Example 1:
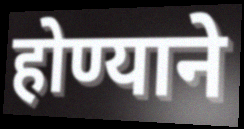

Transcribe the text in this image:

होण्याने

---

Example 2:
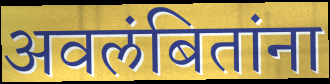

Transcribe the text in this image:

अवलंबितांना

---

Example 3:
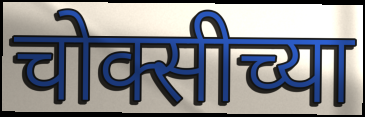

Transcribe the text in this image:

चोक्सीच्या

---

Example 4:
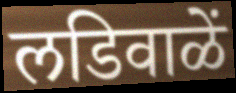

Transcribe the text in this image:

लडिवाळें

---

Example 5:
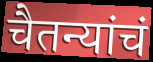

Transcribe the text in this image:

चैतन्यांचं